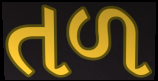
તળ